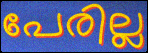
പേരില്ല